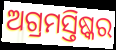
ଅଗ୍ରମସ୍ତିଷ୍କର